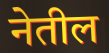
नेतील